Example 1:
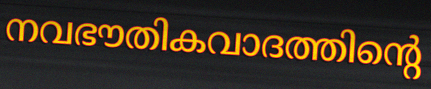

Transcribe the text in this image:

നവഭൗതികവാദത്തിന്റെ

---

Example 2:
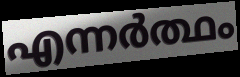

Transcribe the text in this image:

എന്നർത്ഥം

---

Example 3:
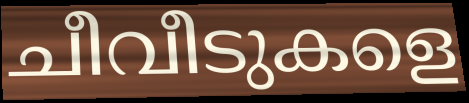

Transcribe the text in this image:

ചീവീടുകളെ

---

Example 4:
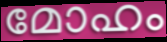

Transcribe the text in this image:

മോഹം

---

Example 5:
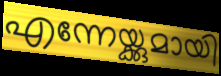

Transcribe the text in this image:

എന്നേയ്ക്കുമായി